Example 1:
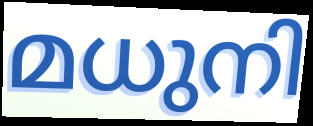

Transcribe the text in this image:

മധുനി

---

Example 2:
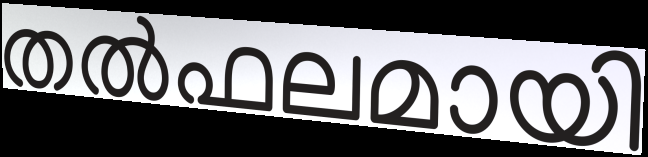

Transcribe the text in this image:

തൽഫലമായി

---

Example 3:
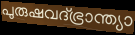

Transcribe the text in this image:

പുരുഷവദ്ഭ്രാന്ത്യാ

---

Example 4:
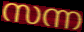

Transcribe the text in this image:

സന്ന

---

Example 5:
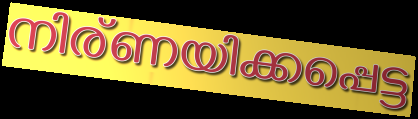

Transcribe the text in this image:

നിര്ണയിക്കപ്പെട്ട